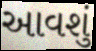
આવશું